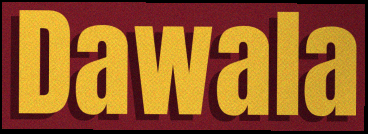
Dawala